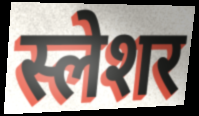
स्लेशर